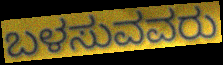
ಬಳಸುವವರು